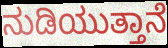
ನುಡಿಯುತ್ತಾನೆ